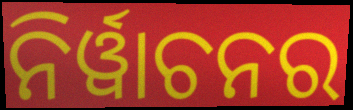
ନିର୍ୱାଚନର